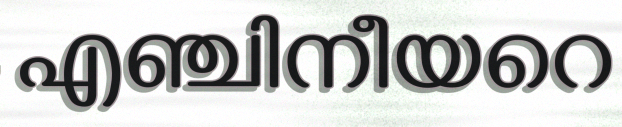
എഞ്ചിനീയറെ